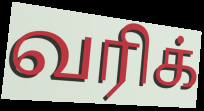
வரிக்